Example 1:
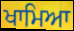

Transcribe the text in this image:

ਖਾਮਿਆ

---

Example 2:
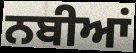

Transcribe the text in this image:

ਨਬੀਆਂ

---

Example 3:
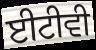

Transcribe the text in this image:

ਈਟੀਵੀ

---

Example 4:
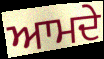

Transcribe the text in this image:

ਆਮਦੇ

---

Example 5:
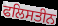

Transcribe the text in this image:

ਫਲਿਸਤੀਨ